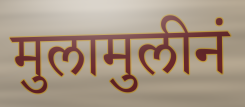
मुलामुलीनं